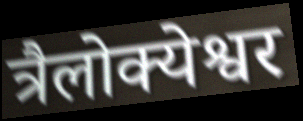
त्रैलोक्येश्वर